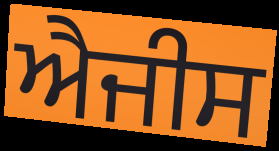
ਐਜੀਸ